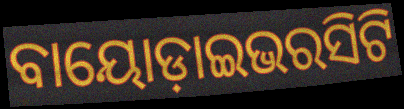
ବାୟୋଡ଼ାଇଭରସିଟି